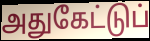
அதுகேட்டுப்